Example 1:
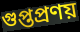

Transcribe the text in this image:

গুপ্তপ্রণয়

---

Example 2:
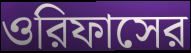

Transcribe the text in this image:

ওরিফাসের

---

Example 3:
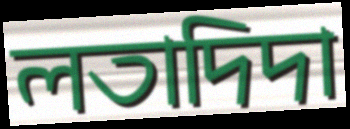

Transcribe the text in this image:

লতাদিদা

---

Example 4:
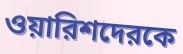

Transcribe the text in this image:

ওয়ারিশদেরকে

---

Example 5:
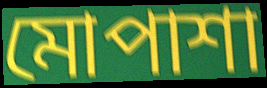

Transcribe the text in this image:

মোপাশা